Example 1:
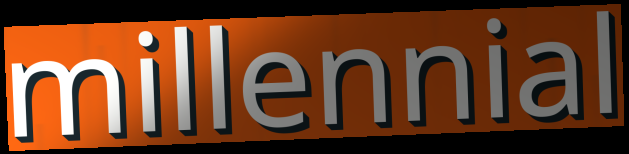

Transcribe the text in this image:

millennial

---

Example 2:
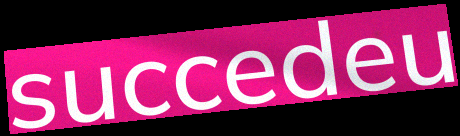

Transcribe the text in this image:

succedeu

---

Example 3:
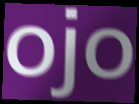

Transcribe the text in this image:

ojo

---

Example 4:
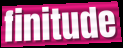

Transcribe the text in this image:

finitude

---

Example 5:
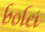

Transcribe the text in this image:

bolei